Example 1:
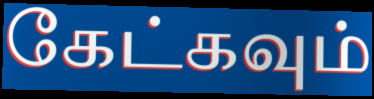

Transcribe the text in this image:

கேட்கவும்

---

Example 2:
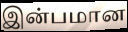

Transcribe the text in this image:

இன்பமான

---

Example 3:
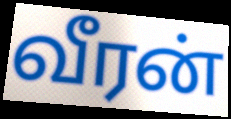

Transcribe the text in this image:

வீரன்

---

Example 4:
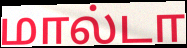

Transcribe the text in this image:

மால்டா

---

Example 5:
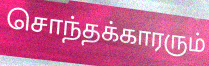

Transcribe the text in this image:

சொந்தக்காரரும்